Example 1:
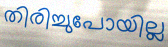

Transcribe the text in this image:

തിരിച്ചുപോയില്ല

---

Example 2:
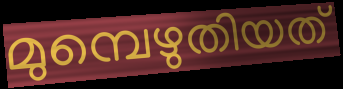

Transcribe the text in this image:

മുമ്പെഴുതിയത്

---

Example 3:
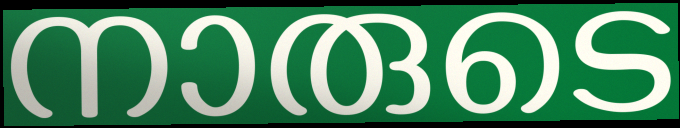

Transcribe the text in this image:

നാരുടെ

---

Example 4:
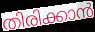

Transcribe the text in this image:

തിരിക്കാൻ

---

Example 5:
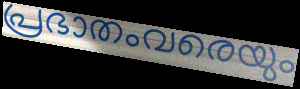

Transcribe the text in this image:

പ്രഭാതംവരെയും